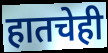
हातचेही